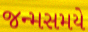
જન્મસમયે